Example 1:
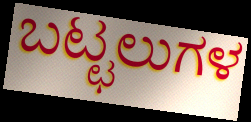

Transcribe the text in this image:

ಬಟ್ಟಲುಗಳ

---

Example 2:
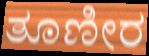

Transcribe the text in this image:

ತೂಣೀರ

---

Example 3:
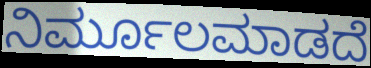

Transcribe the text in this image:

ನಿರ್ಮೂಲಮಾಡದೆ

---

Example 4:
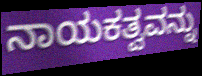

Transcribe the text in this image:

ನಾಯಕತ್ವವನ್ನು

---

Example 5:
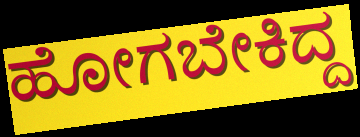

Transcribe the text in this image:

ಹೋಗಬೇಕಿದ್ದ